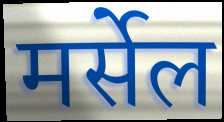
मर्सेल